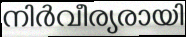
നിർവീര്യരായി